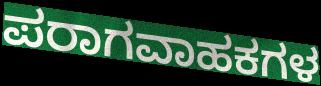
ಪರಾಗವಾಹಕಗಳ